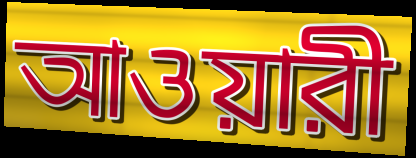
আওয়ারী